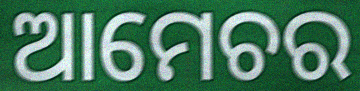
ଆମେଚର